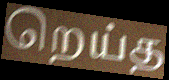
றெய்த